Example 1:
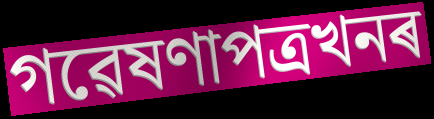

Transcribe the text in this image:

গৱেষণাপত্ৰখনৰ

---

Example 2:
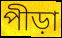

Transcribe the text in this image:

পীড়া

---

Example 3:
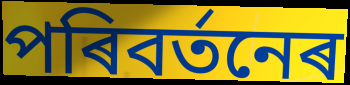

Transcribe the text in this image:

পৰিবৰ্তনেৰ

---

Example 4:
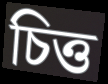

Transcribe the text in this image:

চিত্ত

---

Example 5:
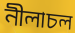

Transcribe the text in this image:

নীলাচল